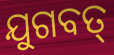
ଯୁଗବତ୍